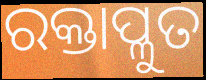
ରକ୍ତାପ୍ଳୁତ